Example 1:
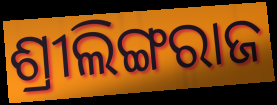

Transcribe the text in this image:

ଶ୍ରୀଲିଙ୍ଗରାଜ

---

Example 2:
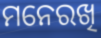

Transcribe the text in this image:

ମନେରଖି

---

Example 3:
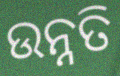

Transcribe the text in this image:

ଉନ୍ନତି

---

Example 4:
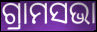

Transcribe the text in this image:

ଗ୍ରାମସଭା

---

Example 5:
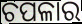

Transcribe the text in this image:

ଚପଳାର